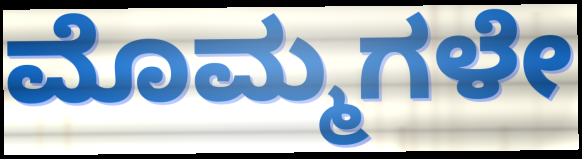
ಮೊಮ್ಮಗಳೇ